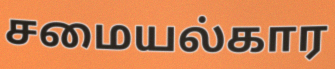
சமையல்கார